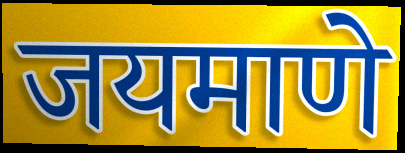
जयमाणे